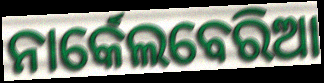
ନାର୍କେଲବେରିଆ